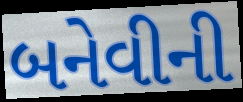
બનેવીની